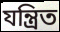
যন্ত্রিত